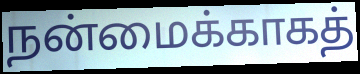
நன்மைக்காகத்